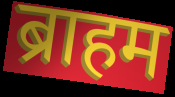
ब्राहम